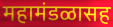
महामंडळासह